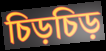
চিড়চিড়